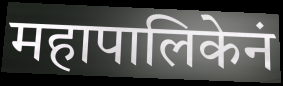
महापालिकेनं